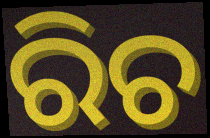
ରିଚ